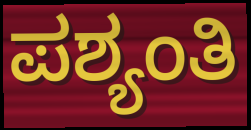
ಪಶ್ಯಂತಿ